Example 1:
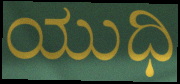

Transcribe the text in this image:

ಯುಧಿ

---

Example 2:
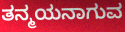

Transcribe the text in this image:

ತನ್ಮಯನಾಗುವ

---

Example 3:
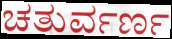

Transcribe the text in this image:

ಚತುರ್ವರ್ಣ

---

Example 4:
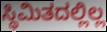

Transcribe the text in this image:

ಸ್ಥಿಮಿತದಲ್ಲಿಲ್ಲ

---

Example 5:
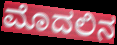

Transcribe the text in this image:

ಮೊದಲಿನ